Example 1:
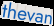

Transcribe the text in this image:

thevan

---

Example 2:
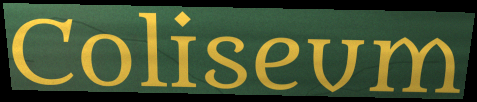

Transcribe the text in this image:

Coliseum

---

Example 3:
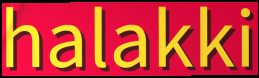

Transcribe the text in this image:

halakki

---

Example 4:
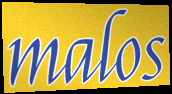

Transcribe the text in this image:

malos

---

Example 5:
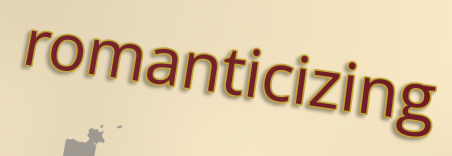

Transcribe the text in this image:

romanticizing